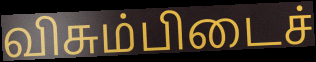
விசும்பிடைச்